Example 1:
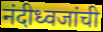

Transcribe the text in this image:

नंदीध्वजांची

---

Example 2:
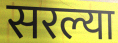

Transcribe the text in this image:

सरल्या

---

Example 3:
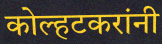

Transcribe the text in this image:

कोल्हटकरांनी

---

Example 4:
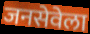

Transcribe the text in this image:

जनसेवेला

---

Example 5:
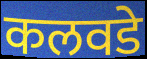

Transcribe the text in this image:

कलवडे